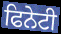
ਫਿਨੇਟੀ